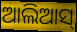
ଆଲିଆସ୍